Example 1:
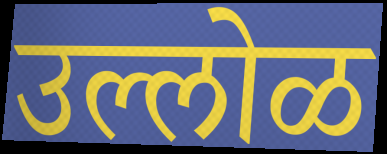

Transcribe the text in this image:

उल्लोळ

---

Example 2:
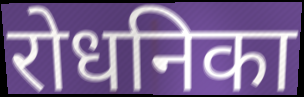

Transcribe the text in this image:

रोधनिका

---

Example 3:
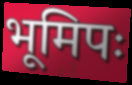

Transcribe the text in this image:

भूमिपः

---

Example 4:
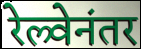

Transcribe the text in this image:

रेल्वेनंतर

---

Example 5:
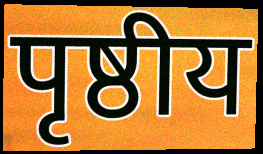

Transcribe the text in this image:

पृष्ठीय